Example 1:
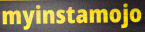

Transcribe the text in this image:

myinstamojo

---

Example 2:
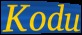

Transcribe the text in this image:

Kodu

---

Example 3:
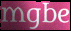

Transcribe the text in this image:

mgbe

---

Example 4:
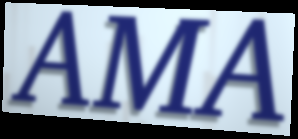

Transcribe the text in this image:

AMA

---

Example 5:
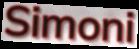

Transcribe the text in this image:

Simoni